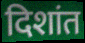
दिशांत